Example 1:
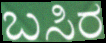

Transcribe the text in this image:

ಬಸಿರ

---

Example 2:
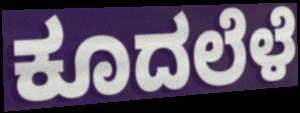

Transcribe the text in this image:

ಕೂದಲೆಳೆ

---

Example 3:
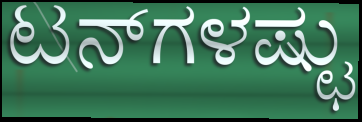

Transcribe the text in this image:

ಟನ್‌ಗಳಷ್ಟು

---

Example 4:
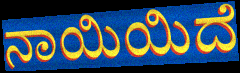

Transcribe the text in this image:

ನಾಯಿಯಿದೆ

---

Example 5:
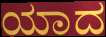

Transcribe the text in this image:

ಯಾದ